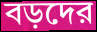
বড়দের